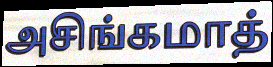
அசிங்கமாத்